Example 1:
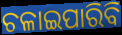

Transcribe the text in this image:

ଚଳାଇପାରିବି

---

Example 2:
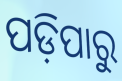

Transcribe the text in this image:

ପଡ଼ିପାରୁ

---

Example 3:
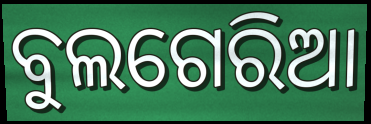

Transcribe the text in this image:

ବୁଲଗେରିଆ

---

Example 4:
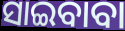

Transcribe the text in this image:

ସାଇବାବା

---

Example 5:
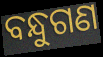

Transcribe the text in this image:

ବନ୍ଧୁଗଣ